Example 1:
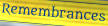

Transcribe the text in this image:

Remembrances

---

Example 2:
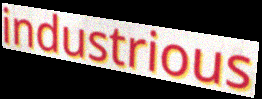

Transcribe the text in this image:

industrious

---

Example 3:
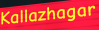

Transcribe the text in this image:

Kallazhagar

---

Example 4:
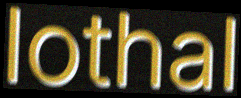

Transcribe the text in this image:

lothal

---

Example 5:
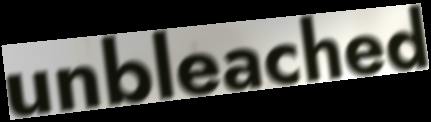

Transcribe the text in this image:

unbleached